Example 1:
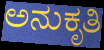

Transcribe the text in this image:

ಅನುಕೃತಿ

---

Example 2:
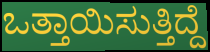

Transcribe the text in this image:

ಒತ್ತಾಯಿಸುತ್ತಿದ್ದೆ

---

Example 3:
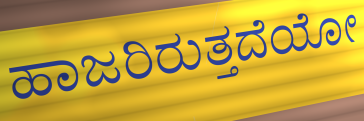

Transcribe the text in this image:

ಹಾಜರಿರುತ್ತದೆಯೋ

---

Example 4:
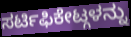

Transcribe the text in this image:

ಸರ್ಟಿಫಿಕೇಟ್ಗಳನ್ನು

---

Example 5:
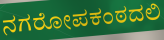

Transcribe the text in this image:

ನಗರೋಪಕಂಠದಲಿ